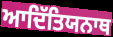
ਆਦਿੱਤਿਯਨਾਥ